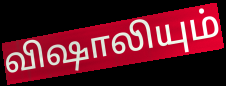
விஷாலியும்